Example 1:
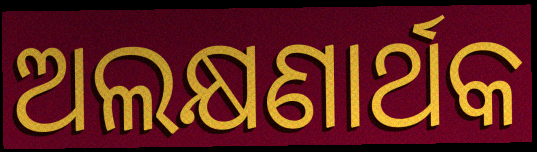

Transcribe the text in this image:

ଅଲକ୍ଷଣାର୍ଥକ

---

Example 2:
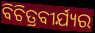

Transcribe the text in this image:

ବିଚିତ୍ରବୀର୍ଯ୍ୟର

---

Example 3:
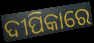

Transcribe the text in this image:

ଦୀପିକାରେ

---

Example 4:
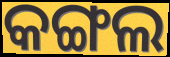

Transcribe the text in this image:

କଙ୍ଗଲ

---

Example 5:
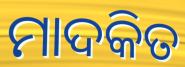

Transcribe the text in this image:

ମାଦକିତ